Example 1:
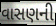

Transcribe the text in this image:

વાસણની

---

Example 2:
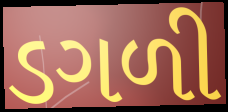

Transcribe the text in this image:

ડગળી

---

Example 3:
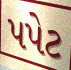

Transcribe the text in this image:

પપેટ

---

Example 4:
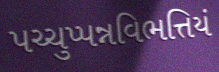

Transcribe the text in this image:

પચ્ચુપ્પન્નવિભત્તિયં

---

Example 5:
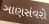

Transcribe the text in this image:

ઞાણસંવરો